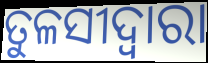
ତୁଳସୀଦ୍ବାରା